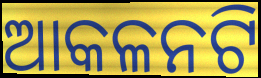
ଆକଳନଟି